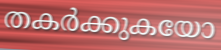
തകർക്കുകയോ